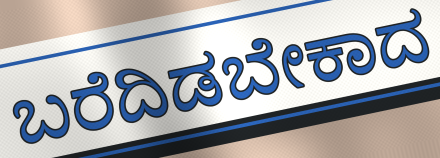
ಬರೆದಿಡಬೇಕಾದ